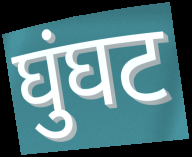
घुंघट